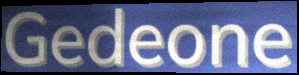
Gedeone